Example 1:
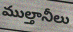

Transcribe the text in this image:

ముల్తానీలు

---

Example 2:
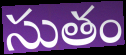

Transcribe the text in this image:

సుతం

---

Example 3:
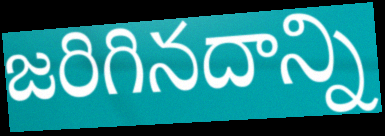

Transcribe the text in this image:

జరిగినదాన్ని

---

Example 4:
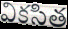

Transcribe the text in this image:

వికసిత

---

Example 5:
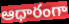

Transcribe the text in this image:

ఆధారంగా